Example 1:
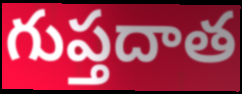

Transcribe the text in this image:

గుప్తదాత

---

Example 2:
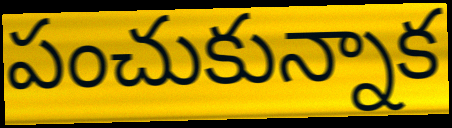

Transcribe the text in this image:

పంచుకున్నాక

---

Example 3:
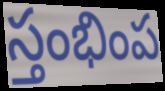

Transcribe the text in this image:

స్తంభింప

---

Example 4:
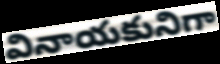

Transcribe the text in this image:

వినాయకునిగా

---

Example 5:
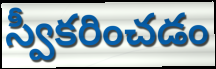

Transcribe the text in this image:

స్వీకరించడం